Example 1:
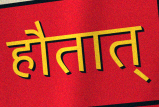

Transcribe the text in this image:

हौतात्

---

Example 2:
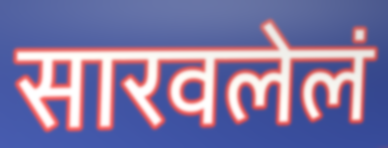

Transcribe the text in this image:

सारवलेलं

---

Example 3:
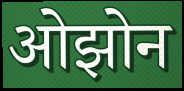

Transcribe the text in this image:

ओझोन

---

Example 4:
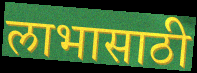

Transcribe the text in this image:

लाभासाठी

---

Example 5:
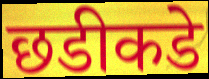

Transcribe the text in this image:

छडीकडे